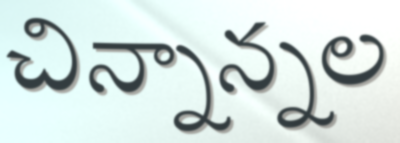
చిన్నాన్నల